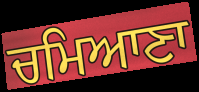
ਚਮਿਆਣਾ